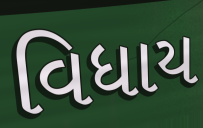
વિધાય